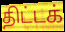
திட்டக்